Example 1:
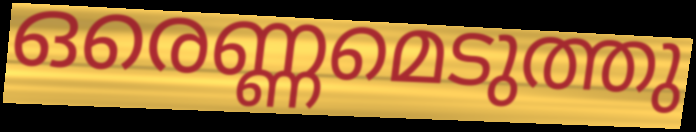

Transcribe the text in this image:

ഒരെണ്ണമെടുത്തു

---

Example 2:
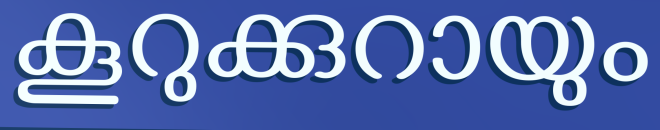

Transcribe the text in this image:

കൂറുക്കുറായും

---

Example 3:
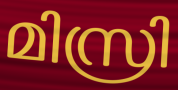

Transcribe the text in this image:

മിസ്രി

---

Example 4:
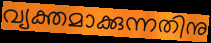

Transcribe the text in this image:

വ്യക്തമാക്കുന്നതിനു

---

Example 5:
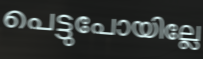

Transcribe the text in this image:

പെട്ടുപോയില്ലേ